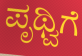
ಪೃಥ್ವಿಗೆ